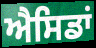
ਐਸਿਡਾਂ